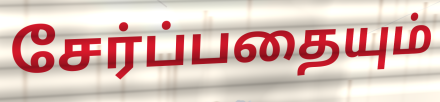
சேர்ப்பதையும்